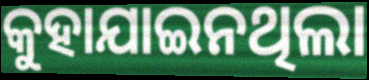
କୁହାଯାଇନଥିଲା